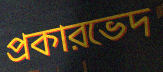
প্রকারভেদ